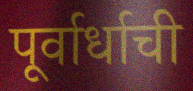
पूर्वार्धाची